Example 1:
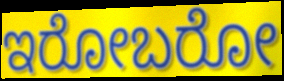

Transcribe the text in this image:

ಇರೋಬರೋ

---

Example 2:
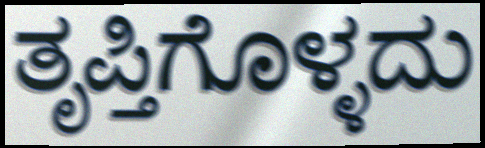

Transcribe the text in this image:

ತೃಪ್ತಿಗೊಳ್ಳದು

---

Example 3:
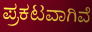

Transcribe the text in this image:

ಪ್ರಕಟವಾಗಿವೆ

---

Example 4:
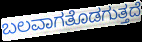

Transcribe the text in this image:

ಬಲವಾಗತೊಡಗುತ್ತದೆ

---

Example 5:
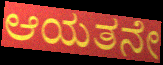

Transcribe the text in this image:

ಆಯತನೇ